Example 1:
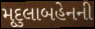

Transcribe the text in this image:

મૃદુલાબહેનની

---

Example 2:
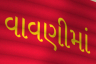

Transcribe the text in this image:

વાવણીમાં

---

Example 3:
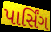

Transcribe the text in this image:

પાર્સિંગ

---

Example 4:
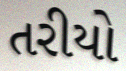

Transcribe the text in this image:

તરીયો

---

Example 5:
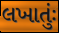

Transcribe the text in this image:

લખાતુંઃ